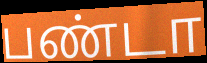
பண்டா